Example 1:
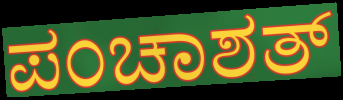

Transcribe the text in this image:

ಪಂಚಾಶತ್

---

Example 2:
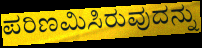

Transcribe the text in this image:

ಪರಿಣಮಿಸಿರುವುದನ್ನು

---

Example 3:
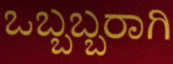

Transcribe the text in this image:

ಒಬ್ಬಬ್ಬರಾಗಿ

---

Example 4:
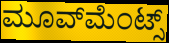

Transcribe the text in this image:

ಮೂವ್‌ಮೆಂಟ್ಸ್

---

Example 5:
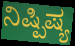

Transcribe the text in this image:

ನಿಷ್ಪಿಷ್ಯ